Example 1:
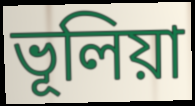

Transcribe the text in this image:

ভূলিয়া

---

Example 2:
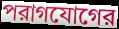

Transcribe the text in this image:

পরাগযোগের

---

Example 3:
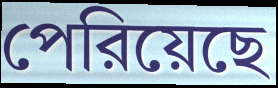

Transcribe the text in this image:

পেরিয়েছে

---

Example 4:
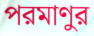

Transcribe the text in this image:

পরমাণুর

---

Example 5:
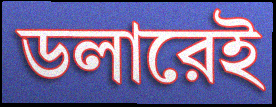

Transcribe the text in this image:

ডলারেই